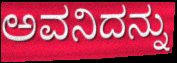
ಅವನಿದನ್ನು